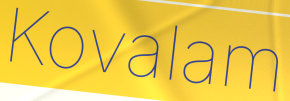
Kovalam